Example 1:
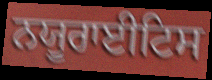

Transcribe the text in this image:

ਨਯੂਰਾਈਟਿਸ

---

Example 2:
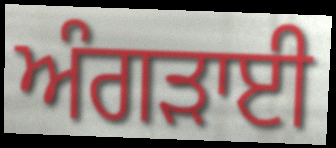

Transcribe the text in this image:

ਅੰਗੜਾਈ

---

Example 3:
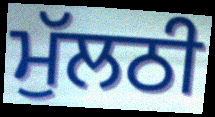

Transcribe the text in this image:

ਮੁੱਲਠੀ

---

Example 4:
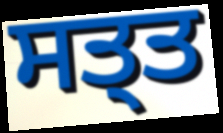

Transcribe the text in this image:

ਸਤ੍ਤ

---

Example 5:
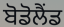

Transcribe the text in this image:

ਬੋਡੋਲੈਂਡ